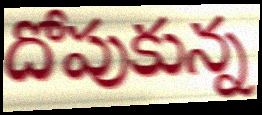
దోపుకున్న